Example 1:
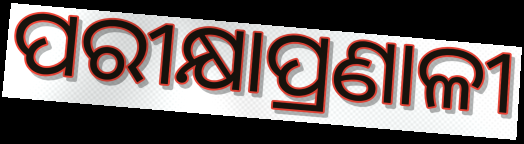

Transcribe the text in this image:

ପରୀକ୍ଷାପ୍ରଣାଳୀ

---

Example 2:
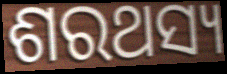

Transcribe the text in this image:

ଶରଥସ୍ୟ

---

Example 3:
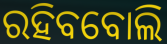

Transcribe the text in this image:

ରହିବବୋଲି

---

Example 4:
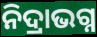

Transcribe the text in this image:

ନିଦ୍ରାଭଗ୍ନ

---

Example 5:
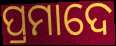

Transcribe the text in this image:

ପ୍ରମାଦେ